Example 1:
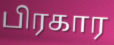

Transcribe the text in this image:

பிரகார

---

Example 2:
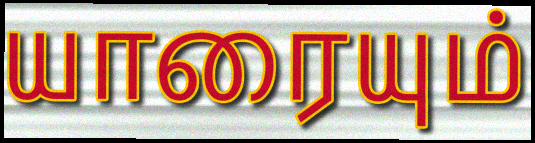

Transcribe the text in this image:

யாரையும்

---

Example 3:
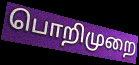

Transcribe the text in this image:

பொறிமுறை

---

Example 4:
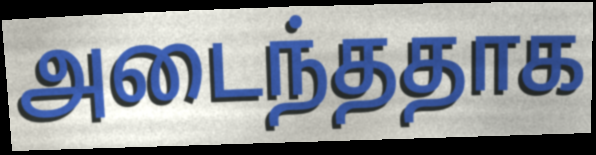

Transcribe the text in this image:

அடைந்ததாக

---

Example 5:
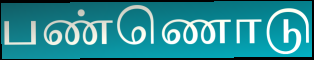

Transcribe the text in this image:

பண்ணொடு